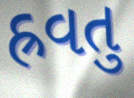
હ્રવતુ